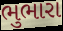
ભુભારા